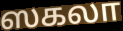
ஸகலா